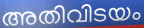
അതിവിടയം